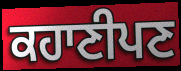
ਕਹਾਣੀਪਣ